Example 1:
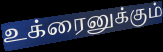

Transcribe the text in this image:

உக்ரைனுக்கும்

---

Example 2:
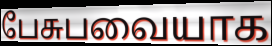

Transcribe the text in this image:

பேசுபவையாக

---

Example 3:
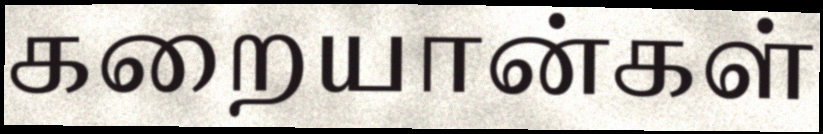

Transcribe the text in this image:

கறையான்கள்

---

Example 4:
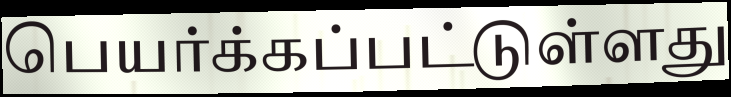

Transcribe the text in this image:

பெயர்க்கப்பட்டுள்ளது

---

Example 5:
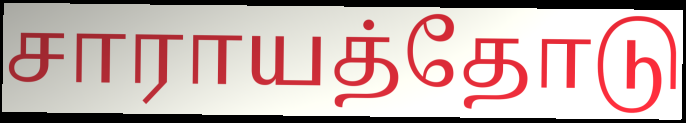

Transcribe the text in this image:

சாராயத்தோடு